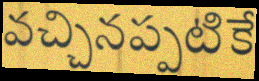
వచ్చినప్పటికే